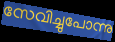
സേവിച്ചുപോന്നു